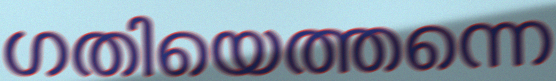
ഗതിയെത്തന്നെ